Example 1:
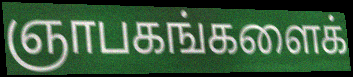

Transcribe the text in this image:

ஞாபகங்களைக்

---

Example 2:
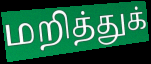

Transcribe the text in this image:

மறித்துக்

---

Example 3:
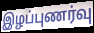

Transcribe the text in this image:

இழப்புணர்வு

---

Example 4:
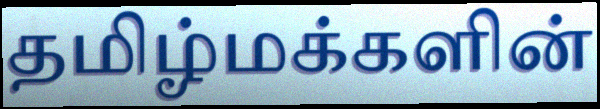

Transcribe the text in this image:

தமிழ்மக்களின்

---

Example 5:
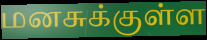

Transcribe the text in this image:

மனசுக்குள்ள